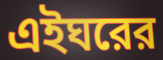
এইঘরের